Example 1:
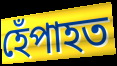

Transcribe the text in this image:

হেঁপাহত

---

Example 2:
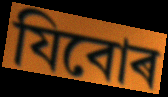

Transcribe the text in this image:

যিবোৰ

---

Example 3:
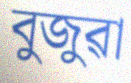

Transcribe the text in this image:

বুজুৱা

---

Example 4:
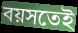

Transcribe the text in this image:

বয়সতেই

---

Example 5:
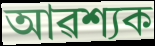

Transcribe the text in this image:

আৱশ্যক